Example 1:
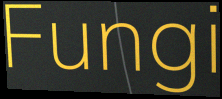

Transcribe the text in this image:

Fungi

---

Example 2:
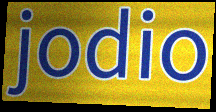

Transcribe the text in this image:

jodio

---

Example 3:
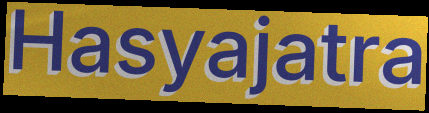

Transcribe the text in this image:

Hasyajatra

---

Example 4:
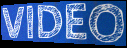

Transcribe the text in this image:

VIDEO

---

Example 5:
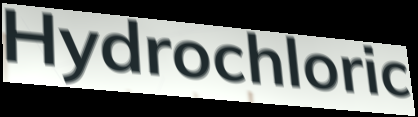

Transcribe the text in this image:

Hydrochloric